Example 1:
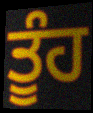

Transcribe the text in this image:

ਤੂੰਹ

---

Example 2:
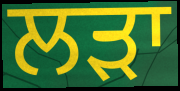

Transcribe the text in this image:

ਲੜਾ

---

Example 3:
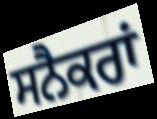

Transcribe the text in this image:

ਸਨੈਕਰਾਂ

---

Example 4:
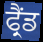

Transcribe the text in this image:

ਫ੍ਰੈਂਡ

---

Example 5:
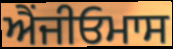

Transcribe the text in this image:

ਐਂਜੀਓਮਾਸ